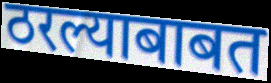
ठरल्याबाबत